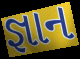
જ્ઞાન